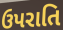
ઉપરાતિ